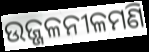
ଉଜ୍ଜଳନୀଳମଣି